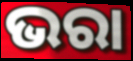
ଭରା